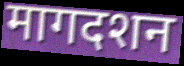
मागदशन